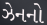
ઝેનનો